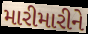
મારીમારીને